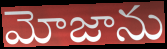
మోజాను